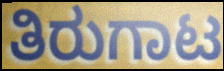
ತಿರುಗಾಟ